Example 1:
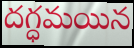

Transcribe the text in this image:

దగ్ధమయిన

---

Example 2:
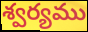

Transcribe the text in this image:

శ్వర్యము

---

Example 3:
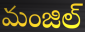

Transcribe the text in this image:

మంజిల్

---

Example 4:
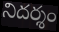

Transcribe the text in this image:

నిదర్శం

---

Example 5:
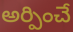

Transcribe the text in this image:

అర్పించే